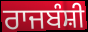
ਰਾਜਬੰਸ਼ੀ